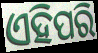
ଏହିପରି